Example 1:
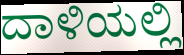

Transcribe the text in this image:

ದಾಳಿಯಲ್ಲಿ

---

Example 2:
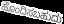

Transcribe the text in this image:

ಹೊಂದಿಸಬಹುದು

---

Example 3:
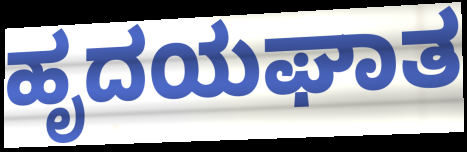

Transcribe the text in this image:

ಹೃದಯಘಾತ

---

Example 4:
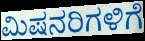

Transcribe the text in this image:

ಮಿಷನರಿಗಳಿಗೆ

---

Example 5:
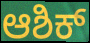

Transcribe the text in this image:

ಆಶಿಕ್